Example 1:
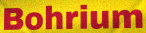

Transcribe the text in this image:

Bohrium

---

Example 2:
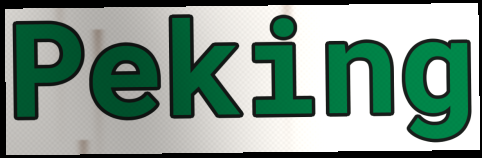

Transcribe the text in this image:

Peking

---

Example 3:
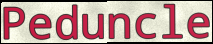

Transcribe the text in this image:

Peduncle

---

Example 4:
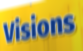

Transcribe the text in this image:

Visions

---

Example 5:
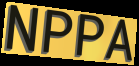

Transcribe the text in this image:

NPPA